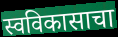
स्वविकासाचा